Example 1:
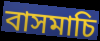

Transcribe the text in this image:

বাসমাচি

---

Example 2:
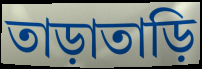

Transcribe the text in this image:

তাড়াতাড়ি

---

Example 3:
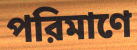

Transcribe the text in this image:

পরিমাণে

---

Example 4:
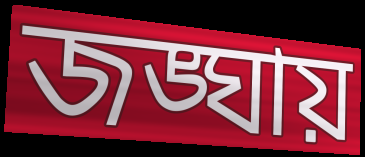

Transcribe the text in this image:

জঙ্ঘায়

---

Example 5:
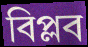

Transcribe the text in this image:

বিপ্লব